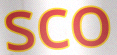
sco